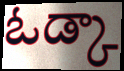
ఓడ్కా